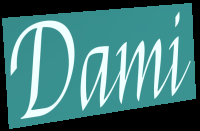
Dami